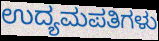
ಉದ್ಯಮಪತಿಗಳು